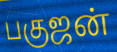
பகுஜன்